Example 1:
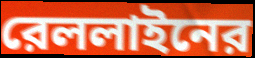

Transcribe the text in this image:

রেললাইনের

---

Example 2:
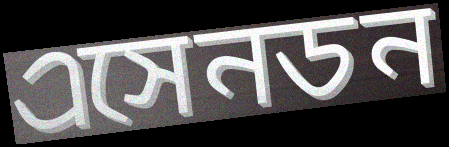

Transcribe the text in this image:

এসেনডন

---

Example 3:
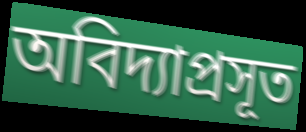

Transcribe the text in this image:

অবিদ্যাপ্রসূত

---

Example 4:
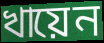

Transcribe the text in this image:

খায়েন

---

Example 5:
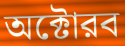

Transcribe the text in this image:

অক্টোরব